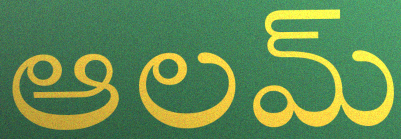
ఆలమ్